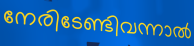
നേരിടേണ്ടിവന്നാൽ